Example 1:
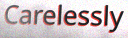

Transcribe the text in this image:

Carelessly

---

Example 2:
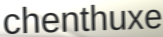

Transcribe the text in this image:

chenthuxe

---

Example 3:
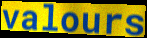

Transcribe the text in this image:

valours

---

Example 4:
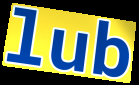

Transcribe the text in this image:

lub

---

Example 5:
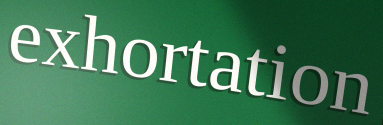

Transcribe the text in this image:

exhortation